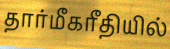
தார்மீகரீதியில்